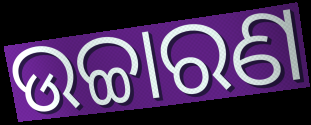
ଉଚ୍ଚାରଣ